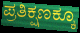
ಪ್ರತಿಕ್ಷಣಕ್ಕೂ